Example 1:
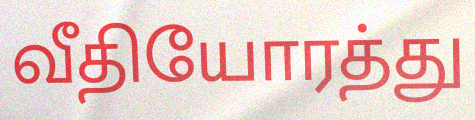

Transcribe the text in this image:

வீதியோரத்து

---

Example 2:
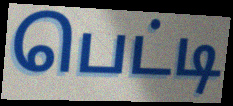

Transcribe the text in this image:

பெட்டி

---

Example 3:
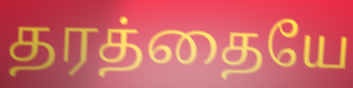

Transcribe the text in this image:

தரத்தையே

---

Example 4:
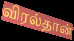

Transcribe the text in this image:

விரல்தான்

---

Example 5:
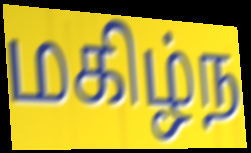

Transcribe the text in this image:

மகிழ்ந